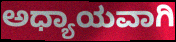
ಅಧ್ಯಾಯವಾಗಿ